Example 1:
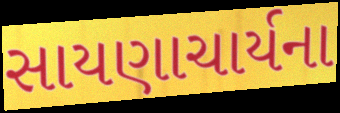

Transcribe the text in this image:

સાયણાચાર્યના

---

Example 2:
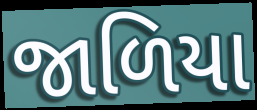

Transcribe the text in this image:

જાળિયા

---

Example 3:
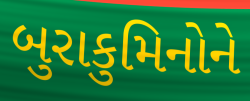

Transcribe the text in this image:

બુરાકુમિનોને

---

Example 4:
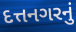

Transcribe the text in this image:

દત્તનગરનું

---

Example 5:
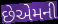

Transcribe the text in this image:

છેએમની